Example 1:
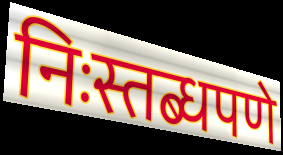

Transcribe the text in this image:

निःस्तब्धपणे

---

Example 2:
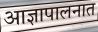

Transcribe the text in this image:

आज्ञापालनात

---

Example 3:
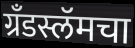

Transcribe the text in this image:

ग्रँडस्लॅमचा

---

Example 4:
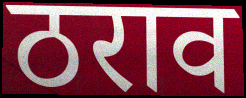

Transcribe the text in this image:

ठराव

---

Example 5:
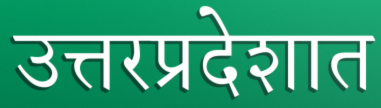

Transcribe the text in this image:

उत्तरप्रदेशात